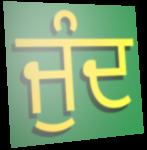
ਜੁੰਦ